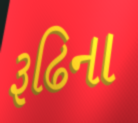
રૂઢિના